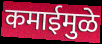
कमाईमुळे